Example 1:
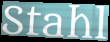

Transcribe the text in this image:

Stahl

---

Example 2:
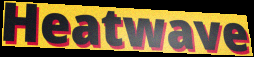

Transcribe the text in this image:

Heatwave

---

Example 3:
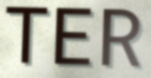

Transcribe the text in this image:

TER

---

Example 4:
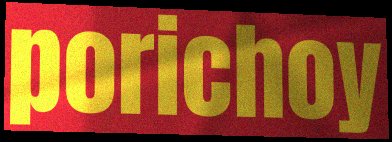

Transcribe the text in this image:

porichoy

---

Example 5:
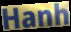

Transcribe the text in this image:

Hanh